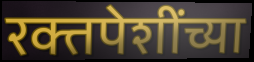
रक्तपेशींच्या